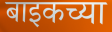
बाइकच्या